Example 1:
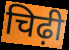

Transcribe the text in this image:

चिढ़ी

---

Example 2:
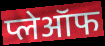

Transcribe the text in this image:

प्लेऑफ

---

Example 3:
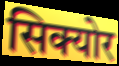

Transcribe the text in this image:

सिक्योर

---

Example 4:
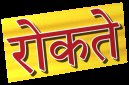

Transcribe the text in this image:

रोकते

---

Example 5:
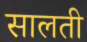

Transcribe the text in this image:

सालती